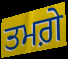
ਤਮਗ਼ੇ